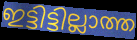
ഇട്ടിട്ടില്ലാത്ത